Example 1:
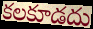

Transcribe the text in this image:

కలకూడదు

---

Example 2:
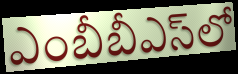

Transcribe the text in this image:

ఎంబీబీఎస్‌లో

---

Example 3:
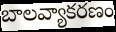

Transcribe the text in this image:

బాలవ్యాకరణం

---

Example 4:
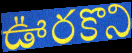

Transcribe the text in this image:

ఊరకొని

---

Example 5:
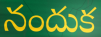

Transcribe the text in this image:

నందుక